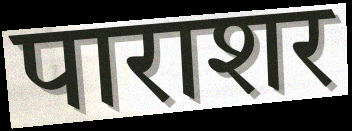
पाराशर